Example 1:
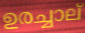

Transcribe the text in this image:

ഉരച്ചാല്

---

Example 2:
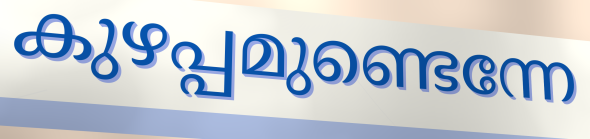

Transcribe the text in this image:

കുഴപ്പമുണ്ടെന്നേ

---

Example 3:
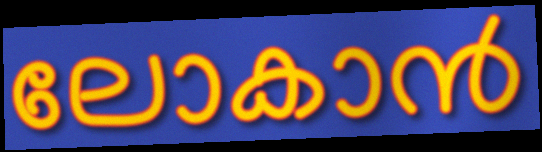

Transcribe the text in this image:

ലോകാൻ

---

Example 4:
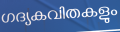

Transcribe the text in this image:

ഗദ്യകവിതകളും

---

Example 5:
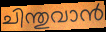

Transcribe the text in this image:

ചിന്തുവാൻ